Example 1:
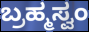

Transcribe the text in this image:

ಬ್ರಹ್ಮಸ್ವಂ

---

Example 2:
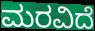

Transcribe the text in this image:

ಮರವಿದೆ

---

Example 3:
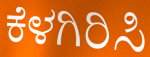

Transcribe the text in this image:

ಕೆಳಗಿರಿಸಿ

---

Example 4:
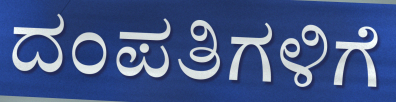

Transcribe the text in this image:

ದಂಪತಿಗಳಿಗೆ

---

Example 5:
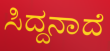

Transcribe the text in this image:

ಸಿದ್ದನಾದೆ